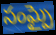
సంఘ్పై